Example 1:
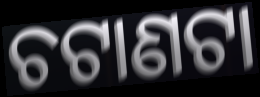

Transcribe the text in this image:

ଚଟାଣଟା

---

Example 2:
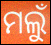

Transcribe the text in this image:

ମଲୁଁ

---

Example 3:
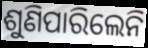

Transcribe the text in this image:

ଶୁଣିପାରିଲେନି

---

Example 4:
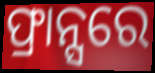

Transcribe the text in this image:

ଫ୍ରାନ୍ସରେ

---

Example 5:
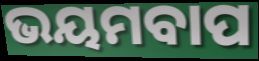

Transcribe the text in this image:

ଭୟମବାପ